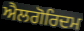
ਐਲਗੋਰਿਦਮ